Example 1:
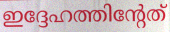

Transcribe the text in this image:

ഇദ്ദേഹത്തിന്റേത്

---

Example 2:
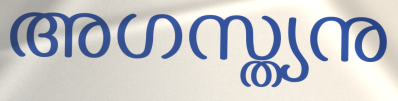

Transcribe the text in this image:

അഗസ്ത്യനു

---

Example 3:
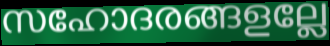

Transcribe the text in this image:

സഹോദരങ്ങളല്ലേ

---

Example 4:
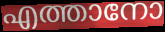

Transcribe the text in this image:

എത്താനോ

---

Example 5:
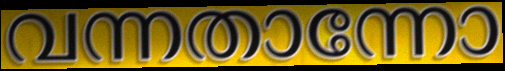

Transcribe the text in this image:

വന്നതാന്നോ